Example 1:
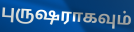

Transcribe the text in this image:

புருஷராகவும்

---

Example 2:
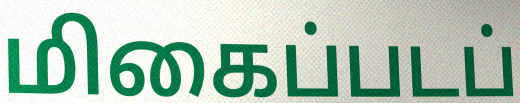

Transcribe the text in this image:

மிகைப்படப்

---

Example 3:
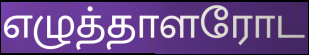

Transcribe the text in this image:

எழுத்தாளரோட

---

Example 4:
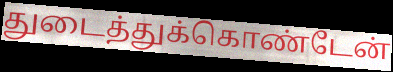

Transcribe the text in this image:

துடைத்துக்கொண்டேன்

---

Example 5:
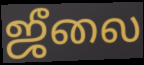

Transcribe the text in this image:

ஜீலை